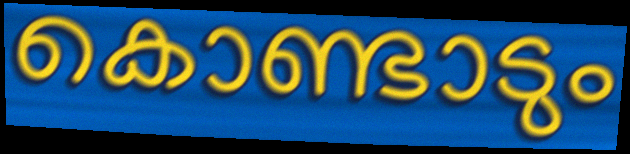
കൊണ്ടാടും